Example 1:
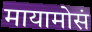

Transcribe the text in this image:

मायामोसं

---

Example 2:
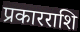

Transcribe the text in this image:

प्रकारराशि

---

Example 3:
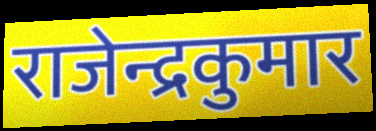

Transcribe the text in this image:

राजेन्द्रकुमार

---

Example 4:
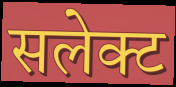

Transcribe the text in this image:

सलेक्ट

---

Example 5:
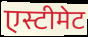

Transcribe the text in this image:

एस्‍टीमेट